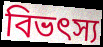
বিভৎস্য